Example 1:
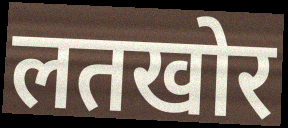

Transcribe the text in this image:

लतखोर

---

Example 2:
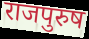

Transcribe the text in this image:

राजपुरुष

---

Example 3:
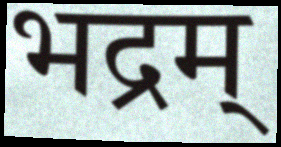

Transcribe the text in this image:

भद्रम्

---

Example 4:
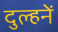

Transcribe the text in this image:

दुल्हनें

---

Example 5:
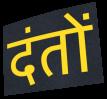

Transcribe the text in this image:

दंतों